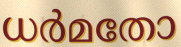
ധർമതോ